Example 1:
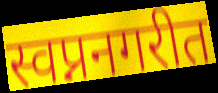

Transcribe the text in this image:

स्वप्ननगरीत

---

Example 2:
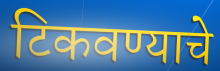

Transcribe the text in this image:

टिकवण्याचे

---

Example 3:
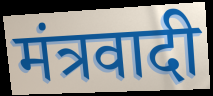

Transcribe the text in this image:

मंत्रवादी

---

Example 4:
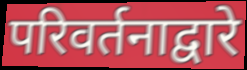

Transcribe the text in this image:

परिवर्तनाद्वारे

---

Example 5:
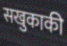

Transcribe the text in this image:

सखुकाकी